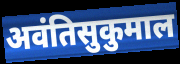
अवंतिसुकुमाल